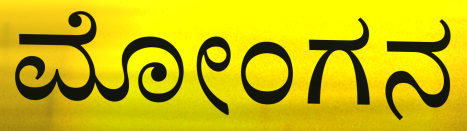
ಮೋಂಗನ